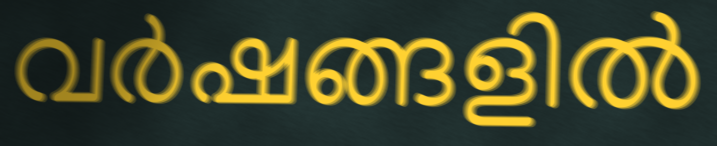
വർഷങ്ങളിൽ